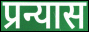
प्रन्यास